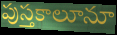
పుస్తకాలూనూ